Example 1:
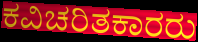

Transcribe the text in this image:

ಕವಿಚರಿತಕಾರರು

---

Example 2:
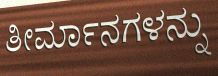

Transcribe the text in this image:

ತೀರ್ಮಾನಗಳನ್ನು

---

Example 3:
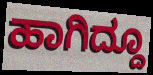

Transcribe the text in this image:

ಹಾಗಿದ್ದೂ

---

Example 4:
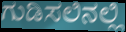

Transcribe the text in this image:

ಗುಡಿಸಲಿನಲ್ಲಿ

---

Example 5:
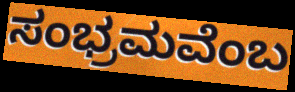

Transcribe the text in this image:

ಸಂಭ್ರಮವೆಂಬ